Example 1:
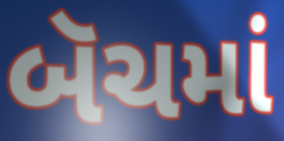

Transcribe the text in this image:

બૅચમાં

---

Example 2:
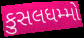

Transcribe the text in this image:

કુસલધમ્મો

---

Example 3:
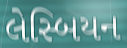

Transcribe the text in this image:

લેસ્બિયન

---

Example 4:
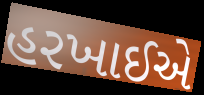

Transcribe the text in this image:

હરખાઈએ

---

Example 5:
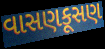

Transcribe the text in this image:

વાસણકૂસણ